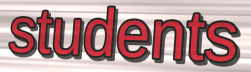
students